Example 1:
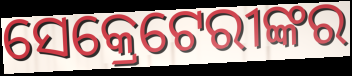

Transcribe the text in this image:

ସେକ୍ରେଟେରୀଙ୍କର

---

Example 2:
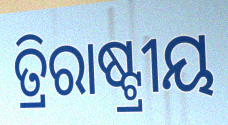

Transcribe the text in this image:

ତ୍ରିରାଷ୍ଟ୍ରୀୟ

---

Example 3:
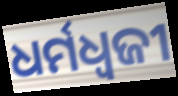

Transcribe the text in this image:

ଧର୍ମଧ୍ୱଜୀ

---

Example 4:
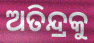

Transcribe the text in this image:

ଅତିନ୍ଦ୍ରକୁ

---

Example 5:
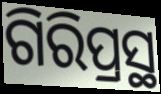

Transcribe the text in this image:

ଗିରିପ୍ରସ୍ଥ